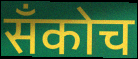
सँकोच